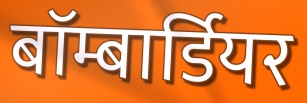
बॉम्बार्डियर